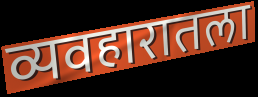
व्यवहारातला